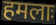
हमलाः